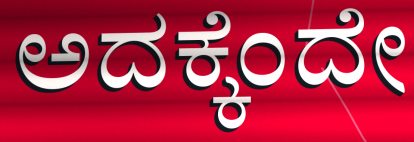
ಅದಕ್ಕೆಂದೇ